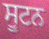
ਸੂਟਨ